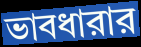
ভাবধারার